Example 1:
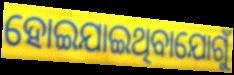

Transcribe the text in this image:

ହୋଇଯାଇଥିବାଯୋଗୁଁ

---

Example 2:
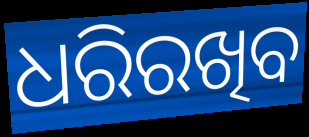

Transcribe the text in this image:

ଧରିରଖିବ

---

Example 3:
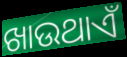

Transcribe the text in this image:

ଖାଉଥାଏଁ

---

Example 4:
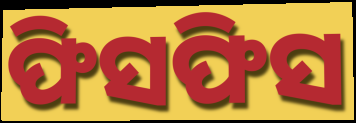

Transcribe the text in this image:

ଫିସଫିସ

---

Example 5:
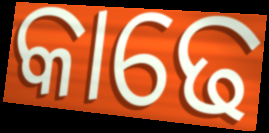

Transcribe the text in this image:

କାଢେ